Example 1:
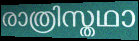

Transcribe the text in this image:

രാത്രിസ്തഥാ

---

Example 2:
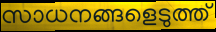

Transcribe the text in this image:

സാധനങ്ങളെടുത്ത്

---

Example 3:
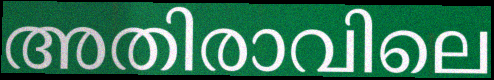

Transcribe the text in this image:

അതിരാവിലെ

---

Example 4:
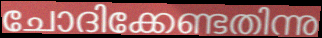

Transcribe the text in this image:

ചോദിക്കേണ്ടതിന്നു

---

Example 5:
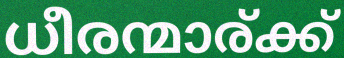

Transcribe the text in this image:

ധീരന്മാര്ക്ക്